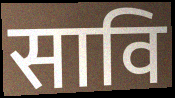
सावि